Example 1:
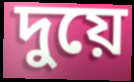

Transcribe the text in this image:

দুয়ে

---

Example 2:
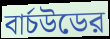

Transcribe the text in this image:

বার্চউডের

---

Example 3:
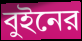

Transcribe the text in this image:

বুইনের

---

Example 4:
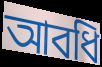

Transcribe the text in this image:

আবধি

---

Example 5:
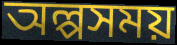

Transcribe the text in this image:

অল্পসময়